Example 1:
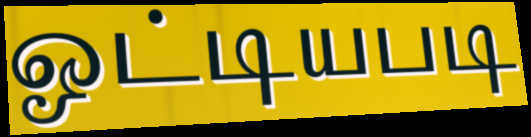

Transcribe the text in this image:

ஓட்டியபடி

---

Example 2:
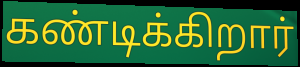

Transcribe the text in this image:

கண்டிக்கிறார்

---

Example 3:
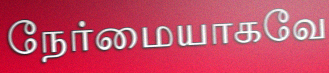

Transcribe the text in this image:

நேர்மையாகவே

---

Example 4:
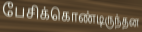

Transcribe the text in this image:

பேசிக்கொண்டிருந்தன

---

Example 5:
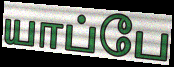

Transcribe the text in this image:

யாப்பே